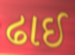
ઢાઈ